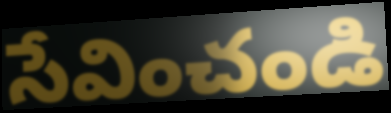
సేవించండి